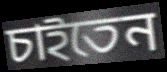
চাইতেন